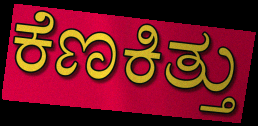
ಕೆಣಕಿತ್ತು